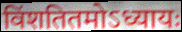
विंशतितमोऽध्यायः